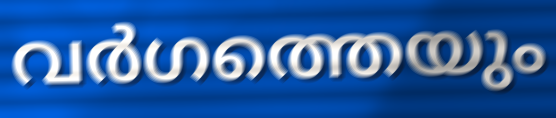
വർഗത്തെയും